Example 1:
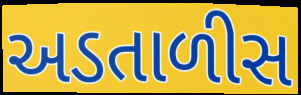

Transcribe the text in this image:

અડતાળીસ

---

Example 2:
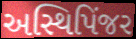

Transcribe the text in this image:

અસ્થિપિંજર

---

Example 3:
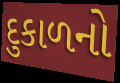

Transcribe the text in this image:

દુકાળનો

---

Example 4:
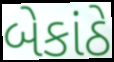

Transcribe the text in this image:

બેકાંઠે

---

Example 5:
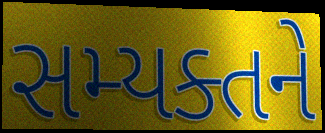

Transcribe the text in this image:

સમ્યક્તને